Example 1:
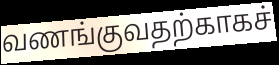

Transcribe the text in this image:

வணங்குவதற்காகச்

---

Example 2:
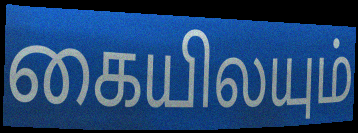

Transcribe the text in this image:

கையிலயும்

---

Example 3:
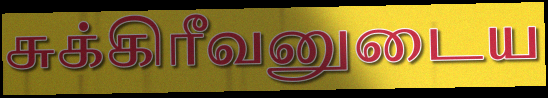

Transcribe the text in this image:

சுக்கிரீவனுடைய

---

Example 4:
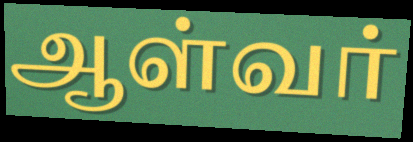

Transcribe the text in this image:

ஆள்வர்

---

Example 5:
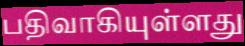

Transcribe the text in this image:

பதிவாகியுள்ளது